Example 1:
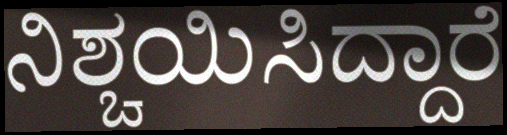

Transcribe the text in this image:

ನಿಶ್ಚಯಿಸಿದ್ದಾರೆ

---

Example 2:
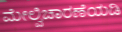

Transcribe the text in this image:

ಮೇಲ್ವಿಚಾರಣೆಯಡಿ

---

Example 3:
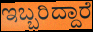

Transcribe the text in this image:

ಇಬ್ಬರಿದ್ದಾರೆ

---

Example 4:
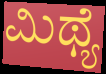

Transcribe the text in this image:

ಮಿಥ್ಯೆ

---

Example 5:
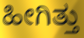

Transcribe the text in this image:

ಹೀಗಿತ್ತು